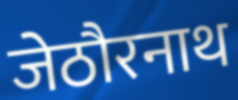
जेठौरनाथ